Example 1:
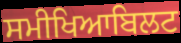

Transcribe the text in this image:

ਸਮੀਖਿਆਬਿਲਟ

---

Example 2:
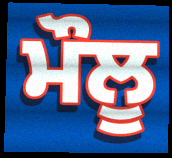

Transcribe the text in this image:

ਮੌਲੂ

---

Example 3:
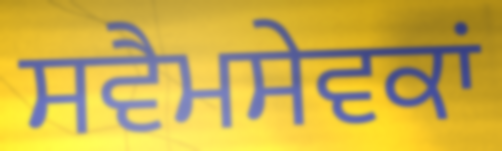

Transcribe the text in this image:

ਸਵੈਮਸੇਵਕਾਂ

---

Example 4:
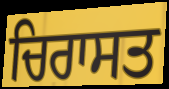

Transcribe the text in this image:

ਚਿਰਾਸਤ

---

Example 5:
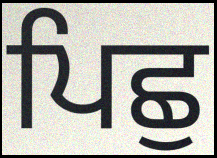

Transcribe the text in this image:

ਪਿਛੁ